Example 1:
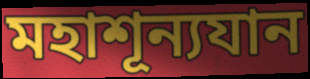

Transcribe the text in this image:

মহাশূন্যযান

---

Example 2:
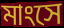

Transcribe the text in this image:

মাংসে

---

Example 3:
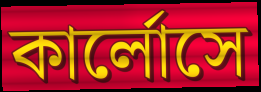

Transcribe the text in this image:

কার্লোসে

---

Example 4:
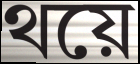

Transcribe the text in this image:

থয়ে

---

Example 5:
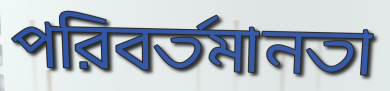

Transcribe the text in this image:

পরিবর্তমানতা